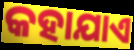
କହାଯାଏ